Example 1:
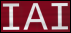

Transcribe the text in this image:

IAI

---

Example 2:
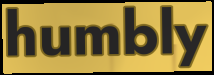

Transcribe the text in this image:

humbly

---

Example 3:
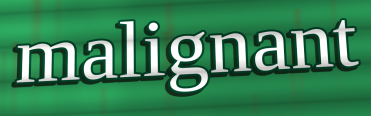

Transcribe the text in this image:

malignant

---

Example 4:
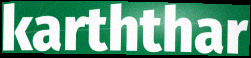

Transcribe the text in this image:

karththar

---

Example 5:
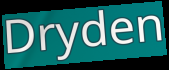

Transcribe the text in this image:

Dryden